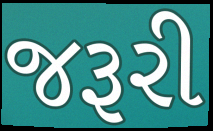
જરૂરી